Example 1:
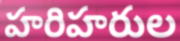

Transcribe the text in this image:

హరిహరుల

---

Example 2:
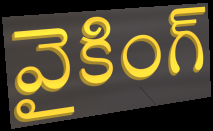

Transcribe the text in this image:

వైకింగ్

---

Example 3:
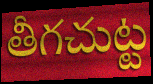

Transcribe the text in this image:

తీగచుట్ట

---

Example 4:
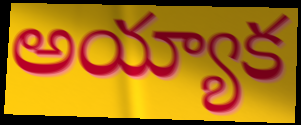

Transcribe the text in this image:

అయ్యాక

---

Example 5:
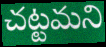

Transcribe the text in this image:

చట్టమని